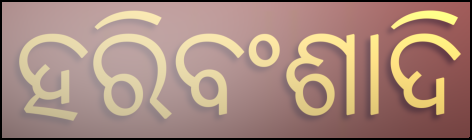
ହରିବଂଶାଦି